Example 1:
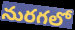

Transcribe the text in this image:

నురగలో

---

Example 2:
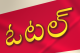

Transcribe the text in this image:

ఓటల్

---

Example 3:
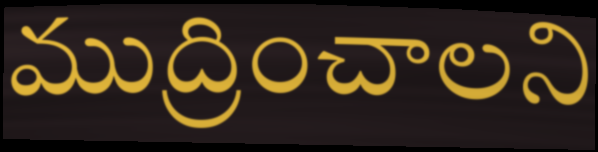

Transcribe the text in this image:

ముద్రించాలని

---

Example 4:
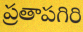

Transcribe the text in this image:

ప్రతాపగిరి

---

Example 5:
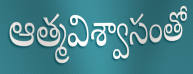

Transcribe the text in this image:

ఆత్మవిశ్వాసంతో